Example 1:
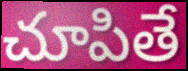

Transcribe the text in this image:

చూపితే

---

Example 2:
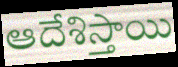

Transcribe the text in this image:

ఆదేశిస్తాయి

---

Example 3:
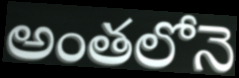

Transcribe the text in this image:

అంతలోనె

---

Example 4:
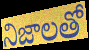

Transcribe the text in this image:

నిజాలతో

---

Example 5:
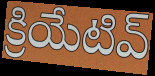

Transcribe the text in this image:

క్రియేటివ్